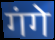
गंगे